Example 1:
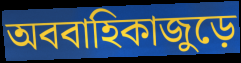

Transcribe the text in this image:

অববাহিকাজুড়ে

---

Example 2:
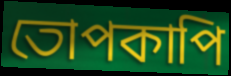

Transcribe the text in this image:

তোপকাপি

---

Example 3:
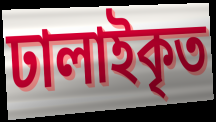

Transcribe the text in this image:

ঢালাইকৃত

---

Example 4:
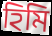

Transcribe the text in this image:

হিমি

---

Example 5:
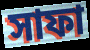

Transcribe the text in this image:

সাফা